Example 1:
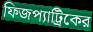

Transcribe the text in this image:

ফিজপ্যাট্রিকের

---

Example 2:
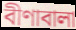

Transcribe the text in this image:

বীণাবালা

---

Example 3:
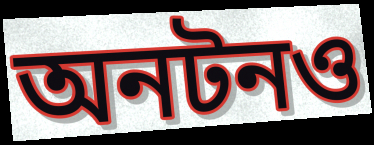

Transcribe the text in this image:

অনটনও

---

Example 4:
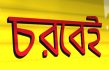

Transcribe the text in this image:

চরবেই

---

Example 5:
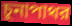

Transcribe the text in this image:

চুনাপাথর